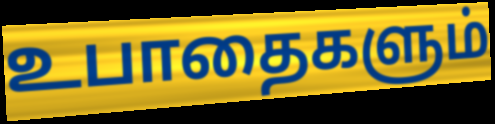
உபாதைகளும்